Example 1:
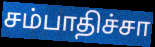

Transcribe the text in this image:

சம்பாதிச்சா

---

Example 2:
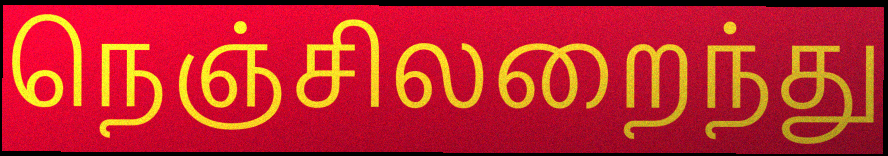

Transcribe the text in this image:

நெஞ்சிலறைந்து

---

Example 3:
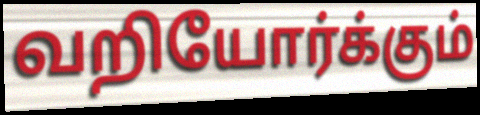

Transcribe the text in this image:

வறியோர்க்கும்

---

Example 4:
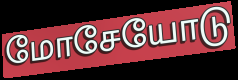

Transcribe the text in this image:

மோசேயோடு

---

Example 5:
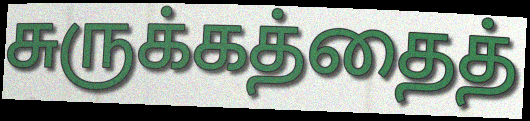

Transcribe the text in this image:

சுருக்கத்தைத்